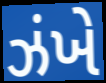
ઝંખે